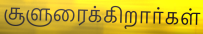
சூளுரைக்கிறார்கள்